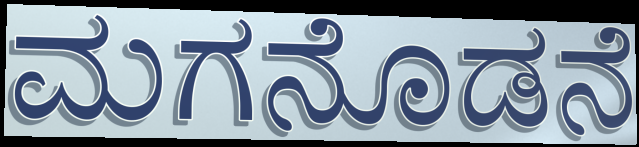
ಮಗನೊಡನೆ